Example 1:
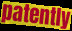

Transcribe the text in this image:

patently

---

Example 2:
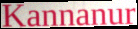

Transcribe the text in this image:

Kannanur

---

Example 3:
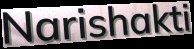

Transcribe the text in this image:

Narishakti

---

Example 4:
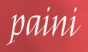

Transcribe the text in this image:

paini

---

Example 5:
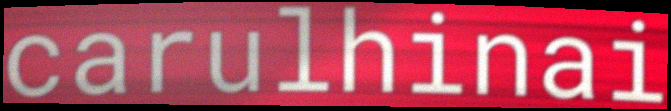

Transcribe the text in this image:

carulhinai